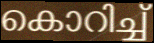
കൊറിച്ച്